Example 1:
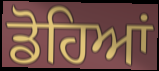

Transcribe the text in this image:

ਡੋਹਿਆਂ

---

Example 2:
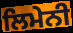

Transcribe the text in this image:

ਲਿਮੇਨੀ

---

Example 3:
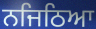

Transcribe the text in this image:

ਨਜਿਠਿਆ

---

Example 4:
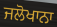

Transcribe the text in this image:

ਜਲੋਖਾਨਾ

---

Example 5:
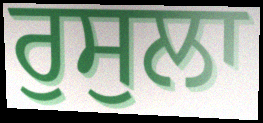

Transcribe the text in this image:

ਰੁਸੁਲਾ